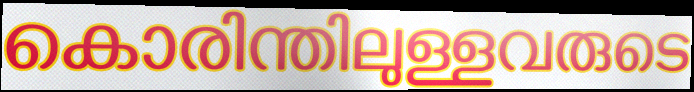
കൊരിന്തിലുള്ളവരുടെ